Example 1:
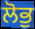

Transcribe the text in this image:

ਲੋਭੁ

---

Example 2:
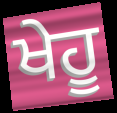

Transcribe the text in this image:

ਖੇਹੂ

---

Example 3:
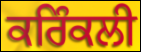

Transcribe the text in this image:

ਕਰਿੰਕਲੀ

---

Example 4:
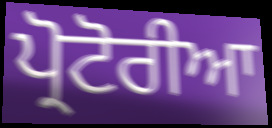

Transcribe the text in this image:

ਪ੍ਰੋਟੋਰੀਆ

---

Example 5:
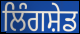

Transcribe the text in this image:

ਲਿੰਗਸ਼ੇਡ